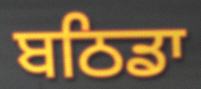
ਬਠਿਡਾ